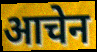
आचेन